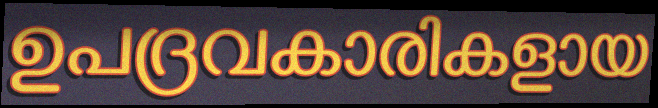
ഉപദ്രവകാരികളായ